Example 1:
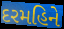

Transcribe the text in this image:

દરમહિને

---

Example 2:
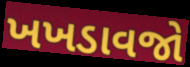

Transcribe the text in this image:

ખખડાવજો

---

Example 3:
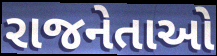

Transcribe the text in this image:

રાજનેતાઓ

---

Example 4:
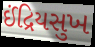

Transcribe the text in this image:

ઈંદ્રિયસુખ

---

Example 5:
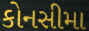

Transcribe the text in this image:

કોનસીમા